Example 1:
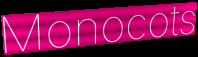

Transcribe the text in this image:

Monocots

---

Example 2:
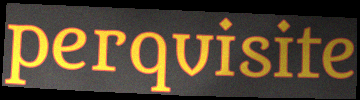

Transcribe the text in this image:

perquisite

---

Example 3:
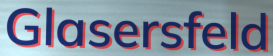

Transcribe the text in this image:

Glasersfeld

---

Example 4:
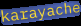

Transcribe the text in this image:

karayache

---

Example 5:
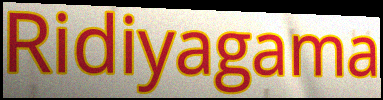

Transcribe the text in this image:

Ridiyagama